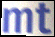
mt